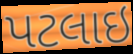
પટલાઇ